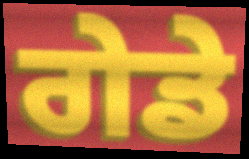
ਗੇਡੇ